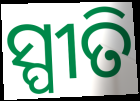
ସ୍ପୀତି